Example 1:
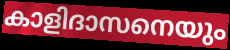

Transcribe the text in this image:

കാളിദാസനെയും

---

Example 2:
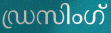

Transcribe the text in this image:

ഡ്രസിംഗ്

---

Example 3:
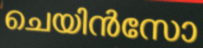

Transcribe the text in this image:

ചെയിൻസോ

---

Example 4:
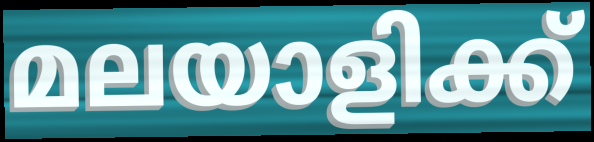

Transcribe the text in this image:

മലയാളിക്ക്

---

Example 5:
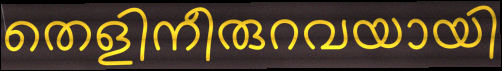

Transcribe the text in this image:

തെളിനീരുറവയായി